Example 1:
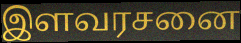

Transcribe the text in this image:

இளவரசனை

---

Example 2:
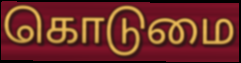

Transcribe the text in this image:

கொடுமை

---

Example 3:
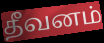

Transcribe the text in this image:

தீவனம்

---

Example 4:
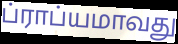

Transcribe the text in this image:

ப்ராப்யமாவது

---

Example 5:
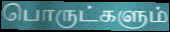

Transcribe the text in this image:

பொருட்களும்